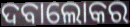
ଦବାଲୋକର